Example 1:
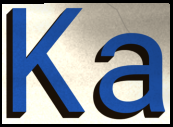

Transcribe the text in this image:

Ka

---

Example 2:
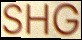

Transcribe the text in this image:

SHG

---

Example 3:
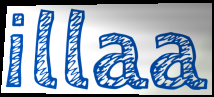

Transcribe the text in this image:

illaa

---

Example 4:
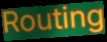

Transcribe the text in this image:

Routing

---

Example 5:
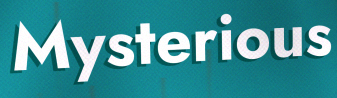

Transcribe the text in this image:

Mysterious